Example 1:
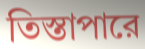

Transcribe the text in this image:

তিস্তাপারে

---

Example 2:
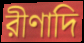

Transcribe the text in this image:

রীণাদি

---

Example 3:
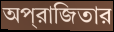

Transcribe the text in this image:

অপ্‌রাজিতার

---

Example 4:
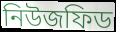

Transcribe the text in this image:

নিউজফিড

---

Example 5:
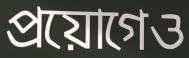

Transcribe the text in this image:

প্রয়োগেও